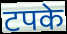
टपके